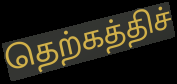
தெற்கத்திச்